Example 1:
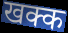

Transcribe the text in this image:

खक्क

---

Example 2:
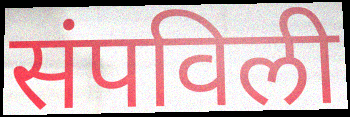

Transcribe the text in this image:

संपविली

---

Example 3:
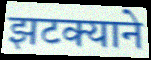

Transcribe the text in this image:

झटक्याने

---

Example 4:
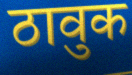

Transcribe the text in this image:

ठावुक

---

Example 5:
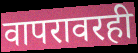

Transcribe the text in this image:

वापरावरही